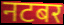
नटबर